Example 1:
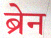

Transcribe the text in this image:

ब्रेन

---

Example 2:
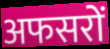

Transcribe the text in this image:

अफसरों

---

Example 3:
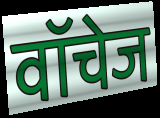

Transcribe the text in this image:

वॉचेज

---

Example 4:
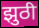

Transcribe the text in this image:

झुठी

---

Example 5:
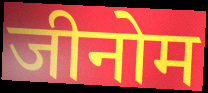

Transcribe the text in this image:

जीनोम